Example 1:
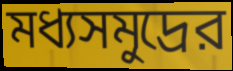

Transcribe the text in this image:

মধ্যসমুদ্রের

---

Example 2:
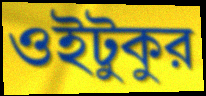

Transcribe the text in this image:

ওইটুকুর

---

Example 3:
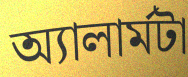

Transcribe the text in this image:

অ্যালার্মটা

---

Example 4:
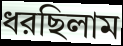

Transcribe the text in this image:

ধরছিলাম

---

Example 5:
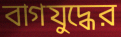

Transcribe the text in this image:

বাগযুদ্ধের